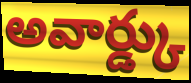
అవార్డ్కు